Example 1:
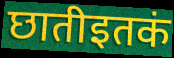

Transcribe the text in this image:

छातीइतकं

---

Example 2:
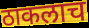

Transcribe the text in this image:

ठाकलाच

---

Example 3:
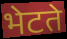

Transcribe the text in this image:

भेटते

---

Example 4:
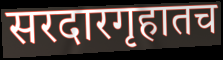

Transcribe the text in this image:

सरदारगृहातच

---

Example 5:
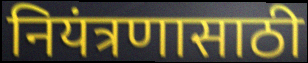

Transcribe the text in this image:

नियंत्रणासाठी